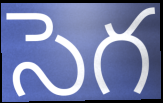
సెగ